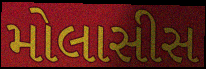
મોલાસીસ